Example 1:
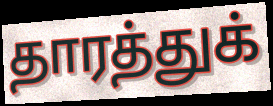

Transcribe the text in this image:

தாரத்துக்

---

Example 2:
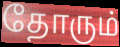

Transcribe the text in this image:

தோரும்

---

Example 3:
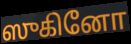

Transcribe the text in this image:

ஸுகினோ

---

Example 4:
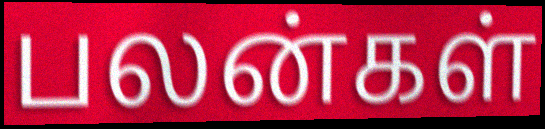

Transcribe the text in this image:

பலன்கள்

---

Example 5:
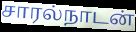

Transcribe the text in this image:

சாரல்நாடன்